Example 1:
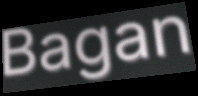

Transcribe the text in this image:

Bagan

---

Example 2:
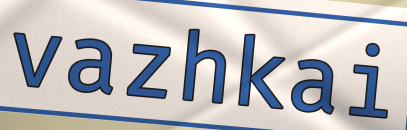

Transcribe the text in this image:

vazhkai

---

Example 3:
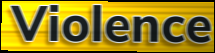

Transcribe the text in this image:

Violence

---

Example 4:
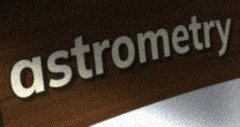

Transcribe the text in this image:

astrometry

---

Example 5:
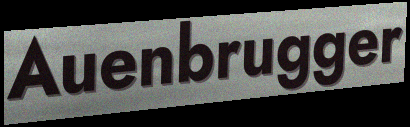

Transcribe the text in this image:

Auenbrugger